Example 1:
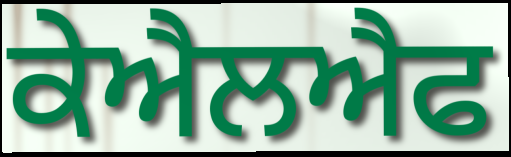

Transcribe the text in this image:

ਕੇਐਲਐਫ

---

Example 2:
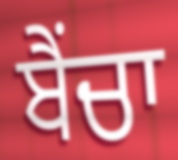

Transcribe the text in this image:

ਬੈਂਚਾ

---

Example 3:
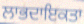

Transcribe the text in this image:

ਲਾਭਦਾਇਕਤਾ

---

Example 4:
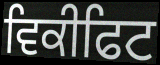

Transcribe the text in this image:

ਵਿਕੀਫਿਟ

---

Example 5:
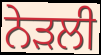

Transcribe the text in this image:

ਨੇੜਲੀ